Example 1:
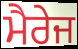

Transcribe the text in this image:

ਮੈਰੇਜ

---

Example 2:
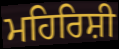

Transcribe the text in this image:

ਮਹਿਰਿਸ਼ੀ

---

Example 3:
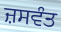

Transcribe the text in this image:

ਜ਼ਸਵੰਤ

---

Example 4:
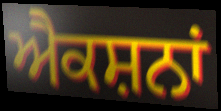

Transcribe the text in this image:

ਐਕਸ਼ਨਾਂ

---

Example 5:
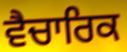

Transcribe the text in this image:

ਵੈਚਾਰਿਕ